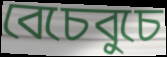
বেচেবুচে